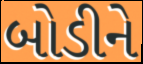
બોડીને